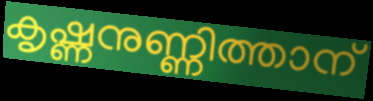
കൃഷ്ണനുണ്ണിത്താന്